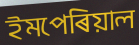
ইমপেৰিয়াল